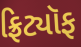
ફ્રિટ્યૉફ